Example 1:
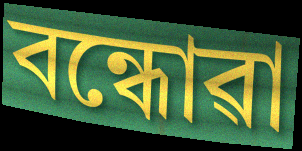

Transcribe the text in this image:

বন্ধোৱা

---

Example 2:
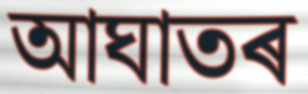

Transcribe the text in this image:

আঘাতৰ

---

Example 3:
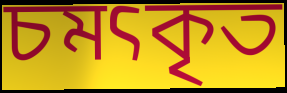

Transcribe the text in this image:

চমৎকৃত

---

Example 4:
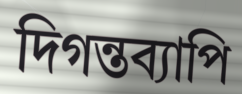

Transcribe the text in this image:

দিগন্তব্যাপি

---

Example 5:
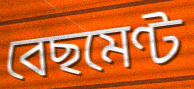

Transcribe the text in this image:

বেছমেণ্ট